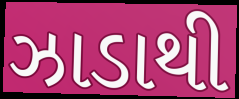
ઝાડાથી